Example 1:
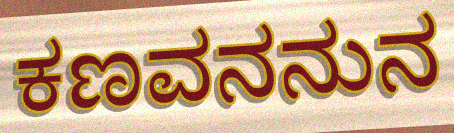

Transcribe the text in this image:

ಕಣವನನುನ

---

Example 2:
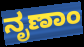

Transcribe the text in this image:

ನೃಣಾಂ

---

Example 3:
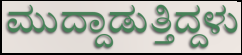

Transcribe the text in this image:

ಮುದ್ದಾಡುತ್ತಿದ್ದಳು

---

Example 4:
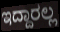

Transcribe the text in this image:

ಇದ್ದಾರಲ್ಲ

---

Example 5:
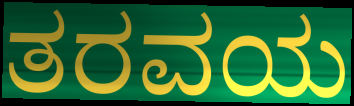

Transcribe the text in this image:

ತರವಯ